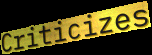
Criticizes